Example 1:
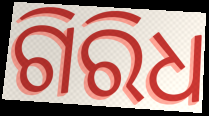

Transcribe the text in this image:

ଗିରିଧ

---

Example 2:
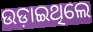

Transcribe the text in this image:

ଉଡ଼ାଇଥିଲେ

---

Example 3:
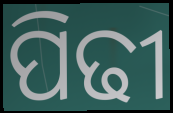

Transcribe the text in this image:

ପିଢୀ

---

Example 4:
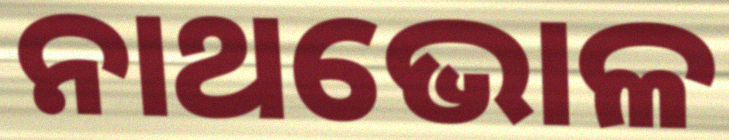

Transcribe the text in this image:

ନାଥଭୋଳ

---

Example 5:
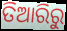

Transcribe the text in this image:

ତିଆରିରୁ